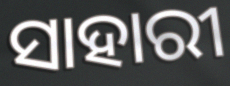
ସାହାରୀ